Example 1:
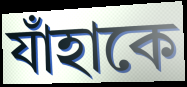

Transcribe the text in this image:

যাঁহাকে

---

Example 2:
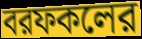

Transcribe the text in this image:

বরফকলের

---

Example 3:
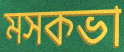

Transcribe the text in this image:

মসকভা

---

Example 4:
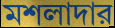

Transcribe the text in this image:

মশলাদার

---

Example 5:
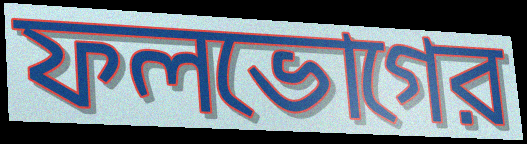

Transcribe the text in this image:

ফলভোগের